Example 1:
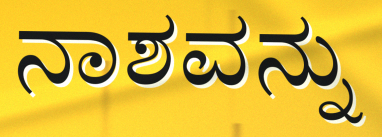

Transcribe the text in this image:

ನಾಶವನ್ನು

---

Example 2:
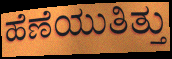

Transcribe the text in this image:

ಹೆಣೆಯುತಿತ್ತು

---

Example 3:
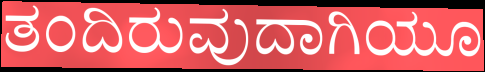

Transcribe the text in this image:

ತಂದಿರುವುದಾಗಿಯೂ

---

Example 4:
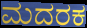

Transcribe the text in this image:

ಮದರಕ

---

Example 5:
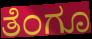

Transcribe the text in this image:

ತೆಂಗೂ